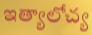
ఇత్యాలోచ్య